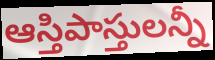
ఆస్తిపాస్తులన్నీ